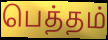
பெத்தம்